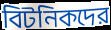
বিটনিকদের